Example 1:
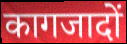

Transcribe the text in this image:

कागजादों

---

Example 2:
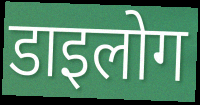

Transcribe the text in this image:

डाइलोग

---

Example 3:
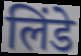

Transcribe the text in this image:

लिंडे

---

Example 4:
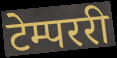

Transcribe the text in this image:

टेम्पररी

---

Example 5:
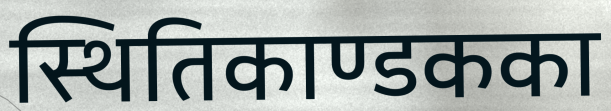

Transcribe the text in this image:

स्थितिकाण्डकका